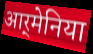
आर्मेनिया